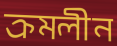
ক্রমলীন